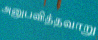
அனுபவித்தவாறு